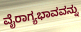
ವೈರಾಗ್ಯಭಾವವನ್ನು